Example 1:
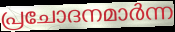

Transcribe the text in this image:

പ്രചോദനമാർന്ന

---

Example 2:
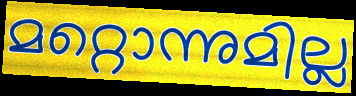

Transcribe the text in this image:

മറ്റൊന്നുമില്ല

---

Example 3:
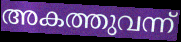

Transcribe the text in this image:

അകത്തുവന്ന്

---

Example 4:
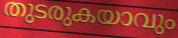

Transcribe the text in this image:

തുടരുകയാവും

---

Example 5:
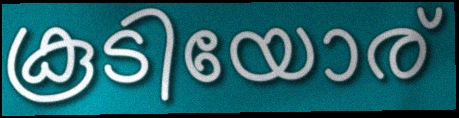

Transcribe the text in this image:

കൂടിയോര്